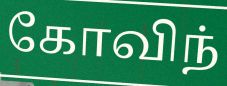
கோவிந்